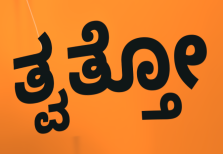
ತ್ವತ್ತೋ